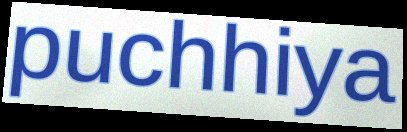
puchhiya